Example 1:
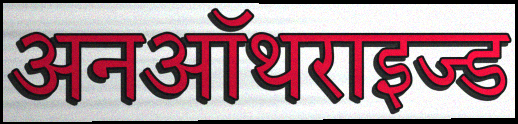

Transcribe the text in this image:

अनऑथराइज्ड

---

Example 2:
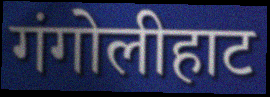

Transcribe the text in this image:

गंगोलीहाट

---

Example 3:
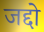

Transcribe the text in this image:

जद्दो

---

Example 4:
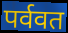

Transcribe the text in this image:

पर्ववत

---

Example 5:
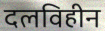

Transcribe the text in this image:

दलविहीन